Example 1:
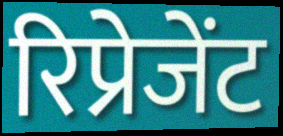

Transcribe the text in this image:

रिप्रेजेंट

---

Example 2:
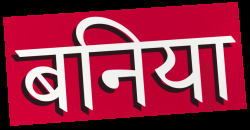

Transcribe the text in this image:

बनिया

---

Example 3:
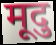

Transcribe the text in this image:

मूदु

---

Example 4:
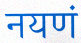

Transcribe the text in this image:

नयणं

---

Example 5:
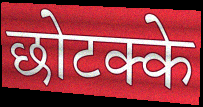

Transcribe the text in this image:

छोटक्के